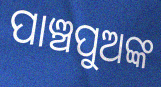
ପାଞ୍ଚପୁଅଙ୍କ